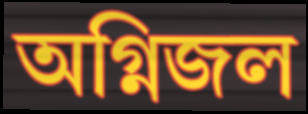
অগ্নিজল